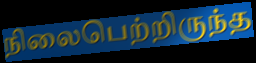
நிலைபெற்றிருந்த